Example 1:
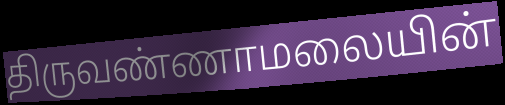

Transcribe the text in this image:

திருவண்ணாமலையின்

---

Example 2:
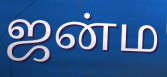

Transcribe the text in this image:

ஜன்ம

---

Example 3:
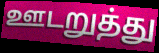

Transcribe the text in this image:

ஊடறுத்து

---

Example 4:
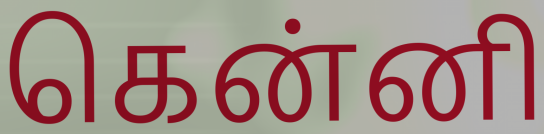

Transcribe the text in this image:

கென்னி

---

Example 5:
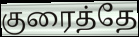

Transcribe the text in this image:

குரைத்தே